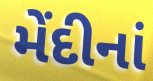
મેંદીનાં